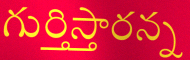
గుర్తిస్తారన్న